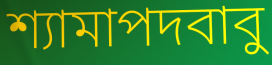
শ্যামাপদবাবু